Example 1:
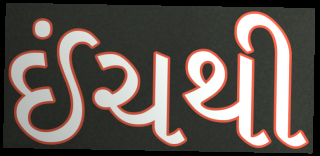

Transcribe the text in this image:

ઈંચથી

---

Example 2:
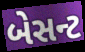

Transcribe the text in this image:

બેસન્ટ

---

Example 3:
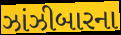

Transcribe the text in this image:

ઝાંઝીબારના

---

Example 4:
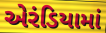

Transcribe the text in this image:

એરંડિયામાં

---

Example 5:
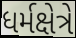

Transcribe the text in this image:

ધર્મક્ષેત્રે